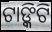
ଟାଙ୍କିଟି